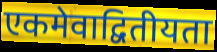
एकमेवाद्वितीयता